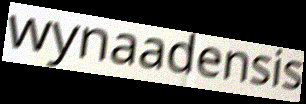
wynaadensis